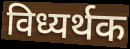
विध्यर्थक